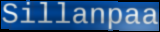
Sillanpaa